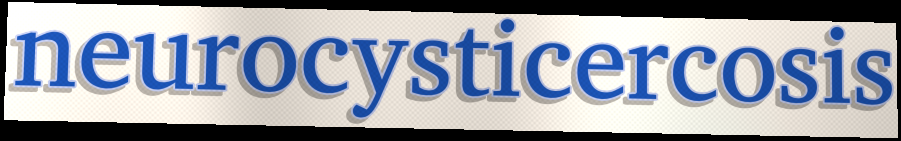
neurocysticercosis